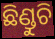
ଛିଣ୍ଡୁଚି